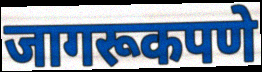
जागरूकपणे